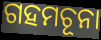
ଗହମଚୂନା